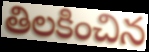
తిలకించిన